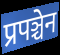
प्रपञ्चेन